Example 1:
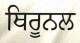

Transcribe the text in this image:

ਥਿਰੂਨਲ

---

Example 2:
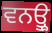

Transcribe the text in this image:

ਵਨਊ੍ਨ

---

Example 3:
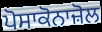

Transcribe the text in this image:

ਪੋਸਾਕੋਨਾਜ਼ੋਲ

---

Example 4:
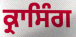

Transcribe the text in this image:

ਕ੍ਰਾਸਿੰਗ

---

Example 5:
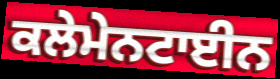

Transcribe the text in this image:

ਕਲੇਮੇਨਟਾਈਨ